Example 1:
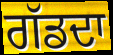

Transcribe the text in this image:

ਗੱਡਦਾ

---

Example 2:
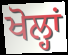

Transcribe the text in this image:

ਖੋਲ੍ਹਾਂ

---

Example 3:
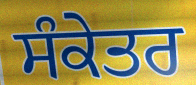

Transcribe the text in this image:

ਸੰਕੇਤਰ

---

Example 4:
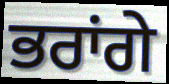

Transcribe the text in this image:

ਭਰਾਂਗੇ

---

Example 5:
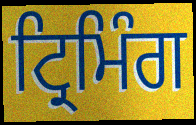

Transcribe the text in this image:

ਟ੍ਰਿਮਿੰਗ